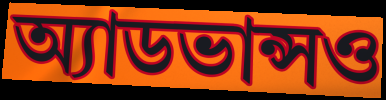
অ্যাডভান্সও